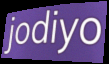
jodiyo